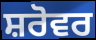
ਸ਼ਰੋਵਰ